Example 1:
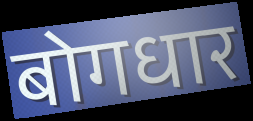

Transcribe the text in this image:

बोगधार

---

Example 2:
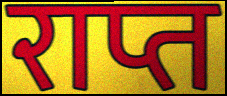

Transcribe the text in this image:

राप्त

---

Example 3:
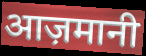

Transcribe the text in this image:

आज़मानी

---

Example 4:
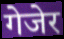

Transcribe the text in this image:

गेजेर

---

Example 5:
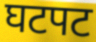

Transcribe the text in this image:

घटपट